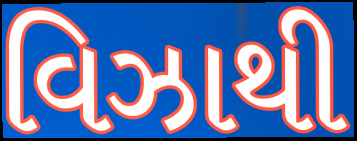
વિઝાથી